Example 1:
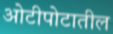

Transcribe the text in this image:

ओटीपोटातील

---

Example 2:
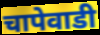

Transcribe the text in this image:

चापेवाडी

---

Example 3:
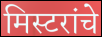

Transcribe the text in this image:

मिस्टरांचे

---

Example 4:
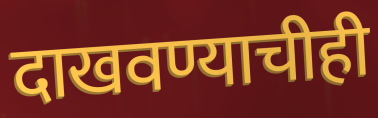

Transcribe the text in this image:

दाखवण्याचीही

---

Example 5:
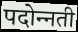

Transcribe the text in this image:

पदोन्‍नती